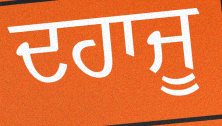
ਦਹਾਜੂ